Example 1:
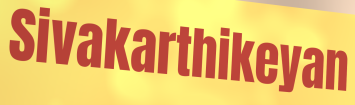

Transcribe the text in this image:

Sivakarthikeyan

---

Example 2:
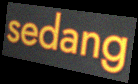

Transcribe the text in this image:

sedang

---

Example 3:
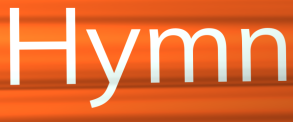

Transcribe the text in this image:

Hymn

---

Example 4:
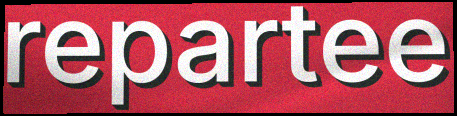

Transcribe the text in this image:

repartee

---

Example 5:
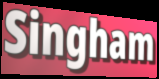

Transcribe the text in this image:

Singham